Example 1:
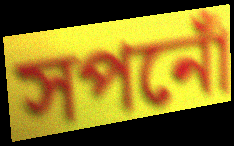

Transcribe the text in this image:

সপনোঁ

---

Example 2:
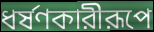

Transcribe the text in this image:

ধর্ষণকারীরূপে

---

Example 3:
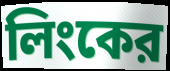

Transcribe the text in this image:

লিংকের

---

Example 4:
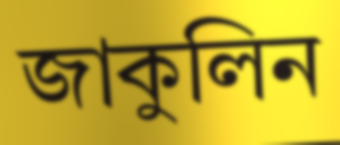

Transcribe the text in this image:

জাকুলিন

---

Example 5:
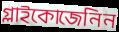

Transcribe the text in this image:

গ্লাইকোজেনিন